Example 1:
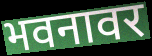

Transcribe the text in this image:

भवनावर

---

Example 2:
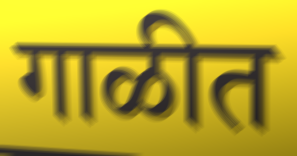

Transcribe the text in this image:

गाळीत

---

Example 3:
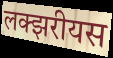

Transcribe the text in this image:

लक्झरीयस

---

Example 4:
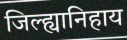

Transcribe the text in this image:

जिल्ह्यानिहाय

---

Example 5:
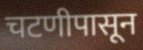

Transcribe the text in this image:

चटणीपासून